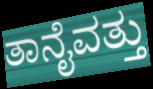
ತಾನೈವತ್ತು